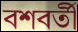
বশবর্তী